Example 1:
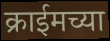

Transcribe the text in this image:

क्राईमच्या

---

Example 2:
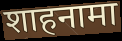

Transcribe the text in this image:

शाहनामा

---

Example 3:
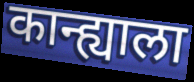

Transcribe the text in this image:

कान्ह्याला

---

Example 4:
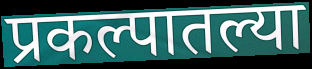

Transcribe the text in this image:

प्रकल्पातल्या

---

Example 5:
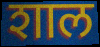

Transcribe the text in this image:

शाल